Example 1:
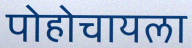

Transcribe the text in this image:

पोहोचायला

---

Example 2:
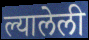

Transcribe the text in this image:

ल्यालेली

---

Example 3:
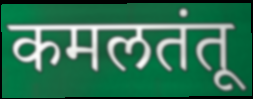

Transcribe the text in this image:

कमलतंतू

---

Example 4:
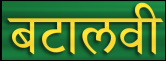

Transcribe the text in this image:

बटालवी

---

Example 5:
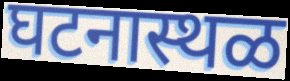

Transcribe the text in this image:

घटनास्थळ